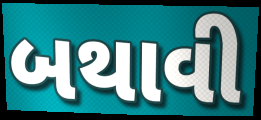
બથાવી